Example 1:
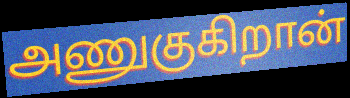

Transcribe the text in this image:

அணுகுகிறான்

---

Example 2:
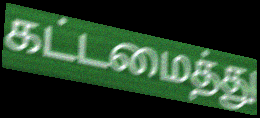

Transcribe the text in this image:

கட்டமைத்து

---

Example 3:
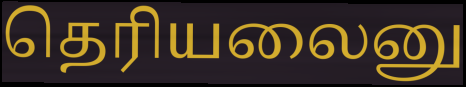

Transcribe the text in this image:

தெரியலைனு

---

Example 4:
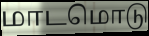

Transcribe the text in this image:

மாடமொடு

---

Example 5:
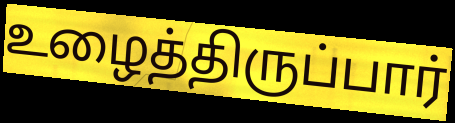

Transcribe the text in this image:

உழைத்திருப்பார்